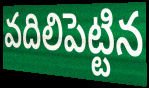
వదిలిపెట్టిన